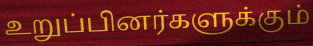
உறுப்பினர்களுக்கும்